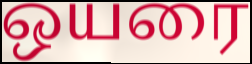
ஒயரை